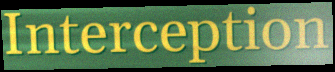
Interception